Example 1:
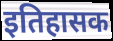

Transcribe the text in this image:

इतिहासक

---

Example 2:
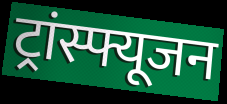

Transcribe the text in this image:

ट्रांस्फ्यूजन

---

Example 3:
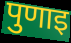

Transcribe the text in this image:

पुणाइ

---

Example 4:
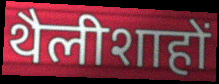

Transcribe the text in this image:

थैलीशाहों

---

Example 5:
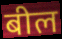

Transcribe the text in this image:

बील